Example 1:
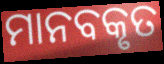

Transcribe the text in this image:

ମାନବକୃତ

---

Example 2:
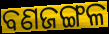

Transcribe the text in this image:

ବଣଜଙ୍ଗଳ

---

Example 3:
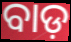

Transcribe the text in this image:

ବାଡ଼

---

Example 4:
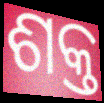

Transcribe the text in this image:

ଶକ୍ତ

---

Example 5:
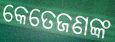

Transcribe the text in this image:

କେତେଜଣଙ୍କ